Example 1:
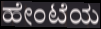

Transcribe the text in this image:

ಹೇಂಟೆಯ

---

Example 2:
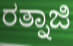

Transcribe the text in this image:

ರತ್ನಾಜಿ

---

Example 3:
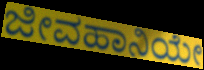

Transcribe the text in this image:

ಜೀವಹಾನಿಯೇ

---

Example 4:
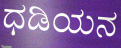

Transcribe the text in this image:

ಧಡಿಯನ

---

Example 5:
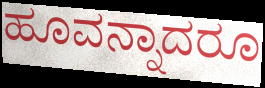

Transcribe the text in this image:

ಹೂವನ್ನಾದರೂ